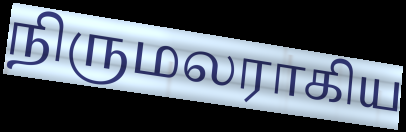
நிருமலராகிய